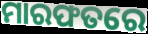
ମାରଫତରେ